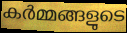
കർമ്മങ്ങളുടെ